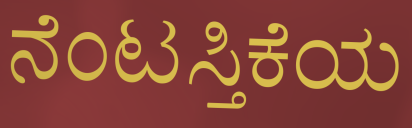
ನೆಂಟಸ್ತಿಕೆಯ